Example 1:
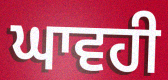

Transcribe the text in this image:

ਘਾਵਹੀ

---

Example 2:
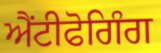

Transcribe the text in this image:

ਐਂਟੀਫੋਗਿੰਗ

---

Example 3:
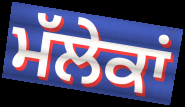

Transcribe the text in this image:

ਮੱਲੇਕਾਂ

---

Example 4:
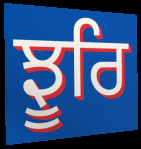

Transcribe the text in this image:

ਝੂਰਿ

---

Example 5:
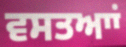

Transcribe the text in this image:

ਵਸਤਆਾਂ